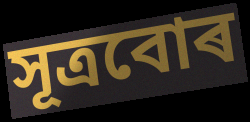
সূত্ৰবোৰ